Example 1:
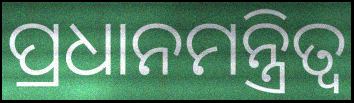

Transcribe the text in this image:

ପ୍ରଧାନମନ୍ତ୍ରିତ୍ଵ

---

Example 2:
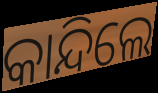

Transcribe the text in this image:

କାନ୍ଦିଲେ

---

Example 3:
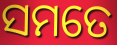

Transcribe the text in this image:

ସମତେ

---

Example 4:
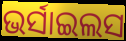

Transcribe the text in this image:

ଭର୍ସାଇଲସ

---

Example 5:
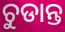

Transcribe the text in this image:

ଚୁଡାନ୍ତ